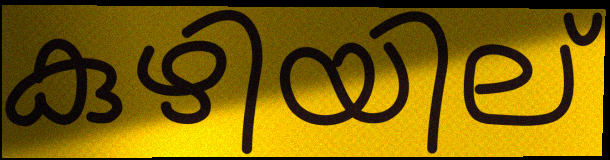
കുഴിയില്